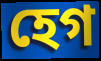
হেগ